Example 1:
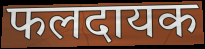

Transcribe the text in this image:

फलदायक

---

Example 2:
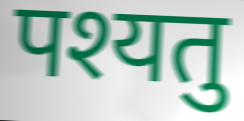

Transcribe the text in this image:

पश्यतु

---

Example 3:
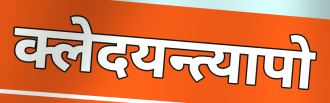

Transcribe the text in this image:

क्लेदयन्त्यापो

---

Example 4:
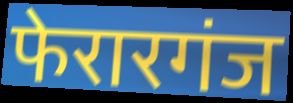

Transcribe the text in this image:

फेरारगंज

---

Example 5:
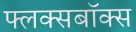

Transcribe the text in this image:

फ्लक्सबॉक्स